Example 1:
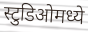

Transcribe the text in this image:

स्टुडिओमध्ये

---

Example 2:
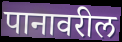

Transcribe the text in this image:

पानावरील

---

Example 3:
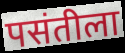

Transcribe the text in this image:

पसंतीला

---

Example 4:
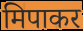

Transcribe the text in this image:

मिपाकर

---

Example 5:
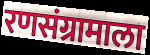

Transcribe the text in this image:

रणसंग्रामाला